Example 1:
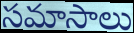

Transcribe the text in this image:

సమాసాలు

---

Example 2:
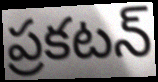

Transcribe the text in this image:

ప్రకటన్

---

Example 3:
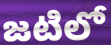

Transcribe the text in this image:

జటిలో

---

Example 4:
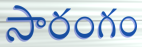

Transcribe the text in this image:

సారంగం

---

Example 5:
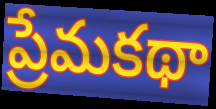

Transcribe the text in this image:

ప్రేమకథా